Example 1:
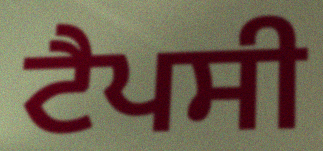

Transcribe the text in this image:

ਟੈਪਸੀ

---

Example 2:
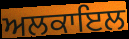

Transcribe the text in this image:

ਅਲਕਾਇਲ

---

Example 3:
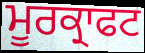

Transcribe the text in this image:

ਮੂਰਕ੍ਰਾਫਟ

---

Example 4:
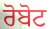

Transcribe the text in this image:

ਰੋਬੋਟ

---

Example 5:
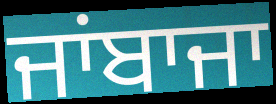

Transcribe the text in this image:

ਜਾਂਬਾਜਾ